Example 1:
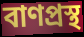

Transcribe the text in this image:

বাণপ্রস্থ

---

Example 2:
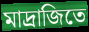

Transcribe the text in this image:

মাদ্রাজিতে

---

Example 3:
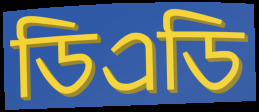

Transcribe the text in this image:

ডিএডি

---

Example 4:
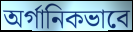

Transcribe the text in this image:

অর্গানিকভাবে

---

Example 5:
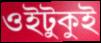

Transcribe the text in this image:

ওইটুকুই